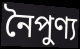
নৈপুণ্য